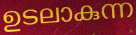
ഉടലാകുന്ന